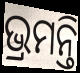
ଭ୍ରମନ୍ତି